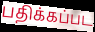
பதிக்கப்பட